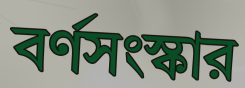
বর্ণসংস্কার